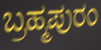
ಬ್ರಹ್ಮಪುರಂ